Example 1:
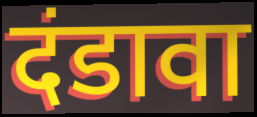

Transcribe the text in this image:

दंडावा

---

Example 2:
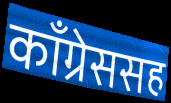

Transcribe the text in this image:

काँग्रेससह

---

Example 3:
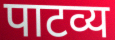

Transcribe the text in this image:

पाटव्य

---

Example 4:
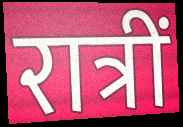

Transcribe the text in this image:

रात्रीं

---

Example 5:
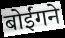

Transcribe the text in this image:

बोईंगने